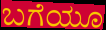
ಬಗೆಯೂ